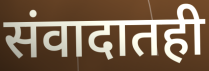
संवादातही